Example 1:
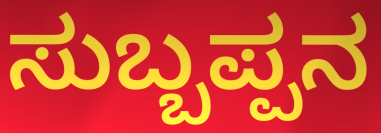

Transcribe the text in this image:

ಸುಬ್ಬಪ್ಪನ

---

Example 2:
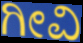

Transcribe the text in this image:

ಗೀವಿ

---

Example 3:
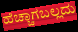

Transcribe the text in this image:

ಹೆಚ್ಚಾಗಬಲ್ಲದು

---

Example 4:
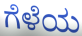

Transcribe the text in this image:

ಗೆಳೆಯ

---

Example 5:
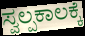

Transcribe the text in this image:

ಸ್ವಲ್ಪಕಾಲಕ್ಕೆ